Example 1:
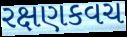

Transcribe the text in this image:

રક્ષણકવચ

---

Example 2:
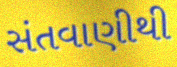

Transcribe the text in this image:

સંતવાણીથી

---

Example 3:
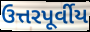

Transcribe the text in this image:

ઉત્તરપૂર્વીય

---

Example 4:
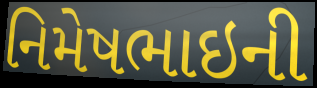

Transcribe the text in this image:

નિમેષભાઇની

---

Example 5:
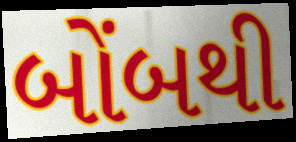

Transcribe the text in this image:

બોંબથી